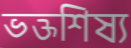
ভক্তশিষ্য